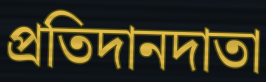
প্রতিদানদাতা